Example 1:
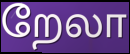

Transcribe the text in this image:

றேலா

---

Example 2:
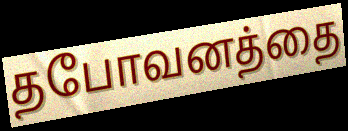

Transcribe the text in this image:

தபோவனத்தை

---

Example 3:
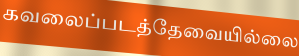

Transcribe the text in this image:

கவலைப்படத்தேவையில்லை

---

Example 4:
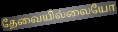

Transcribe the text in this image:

தேவையில்லையோ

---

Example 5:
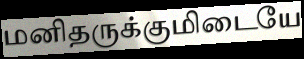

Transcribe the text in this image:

மனிதருக்குமிடையே